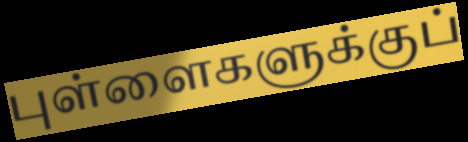
புள்ளைகளுக்குப்